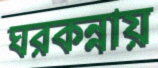
ঘরকন্নায়